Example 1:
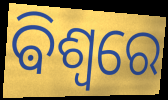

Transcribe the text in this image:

ଵିଶ୍ୱରେ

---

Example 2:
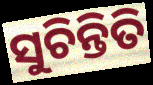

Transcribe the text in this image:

ସୁଚିନ୍ତିତି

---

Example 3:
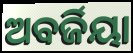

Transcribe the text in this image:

ଅବର୍ଜିୟା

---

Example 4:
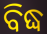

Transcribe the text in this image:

ବିଦ୍ଧ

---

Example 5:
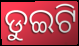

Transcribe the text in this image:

ଡୁଇଟି